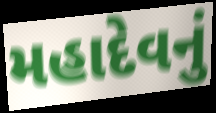
મહાદેવનું